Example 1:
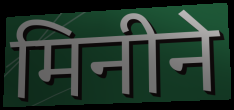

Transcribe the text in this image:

मिनीने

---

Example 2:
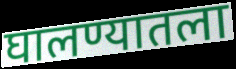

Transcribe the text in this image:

घालण्यातला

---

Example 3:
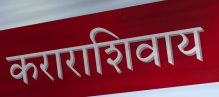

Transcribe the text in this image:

कराराशिवाय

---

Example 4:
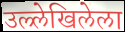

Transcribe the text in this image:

उल्लेखिलेला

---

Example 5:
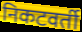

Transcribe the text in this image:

निकटवर्ती